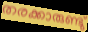
തരക്കാരുണ്ടു്